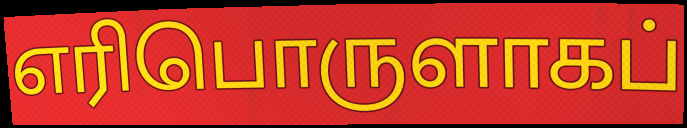
எரிபொருளாகப்